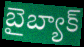
బైబ్యాక్